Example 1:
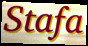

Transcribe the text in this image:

Stafa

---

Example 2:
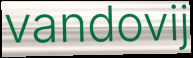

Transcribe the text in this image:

vandovij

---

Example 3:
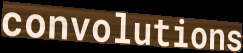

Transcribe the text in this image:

convolutions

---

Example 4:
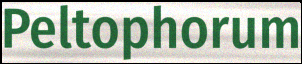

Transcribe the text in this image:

Peltophorum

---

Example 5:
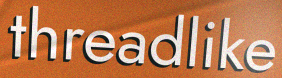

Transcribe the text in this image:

threadlike